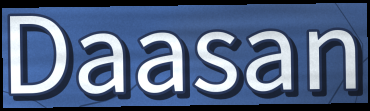
Daasan